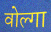
वोल्गा